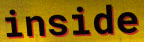
inside